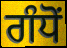
ਗੰਧੋਂ